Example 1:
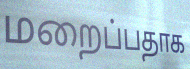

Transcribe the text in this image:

மறைப்பதாக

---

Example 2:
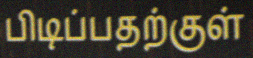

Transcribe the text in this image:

பிடிப்பதற்குள்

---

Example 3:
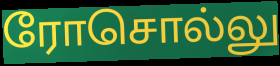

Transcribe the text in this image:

ரோசொல்லு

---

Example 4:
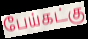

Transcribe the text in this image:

பேய்கட்கு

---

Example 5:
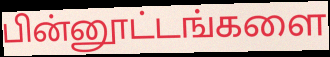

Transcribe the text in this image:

பின்னூட்டங்களை